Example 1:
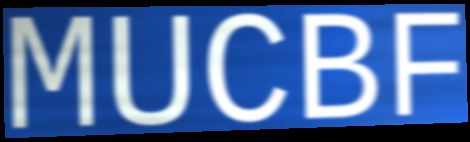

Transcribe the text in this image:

MUCBF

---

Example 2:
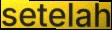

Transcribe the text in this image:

setelah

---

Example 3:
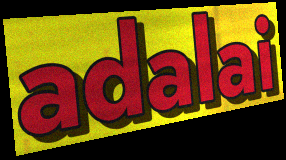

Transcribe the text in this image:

adalai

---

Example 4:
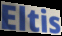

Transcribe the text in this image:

Eltis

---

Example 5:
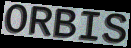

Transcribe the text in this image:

ORBIS